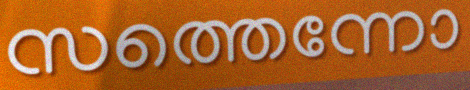
സത്തെന്നോ